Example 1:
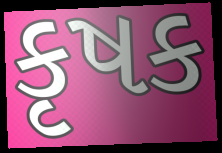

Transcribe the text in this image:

કૃષક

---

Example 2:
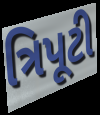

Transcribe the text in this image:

ત્રિપૂટી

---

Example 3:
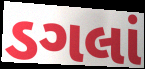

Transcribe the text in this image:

ડગલાં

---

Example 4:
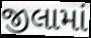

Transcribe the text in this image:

જીલામાં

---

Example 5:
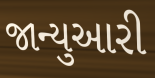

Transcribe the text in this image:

જાન્યુઆરી